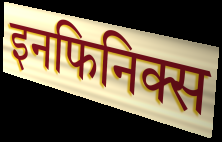
इनफिनिक्स